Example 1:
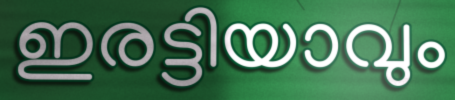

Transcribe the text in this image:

ഇരട്ടിയാവും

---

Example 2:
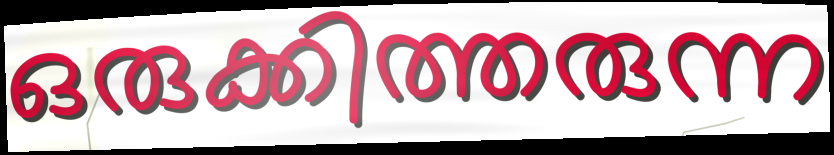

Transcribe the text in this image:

ഒരുക്കിത്തരുന്ന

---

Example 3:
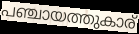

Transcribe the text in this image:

പഞ്ചായത്തുകാര്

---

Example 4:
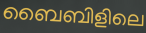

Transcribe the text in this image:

ബൈബിളിലെ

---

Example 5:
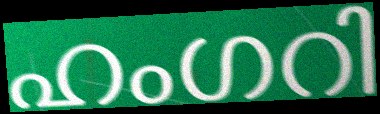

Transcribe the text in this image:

ഹംഗറി